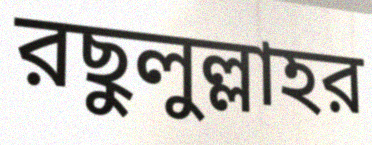
রছুলুল্লাহর